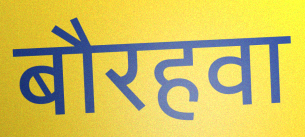
बौरहवा